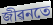
জীৱনতে